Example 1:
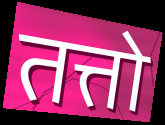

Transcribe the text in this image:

तत्तो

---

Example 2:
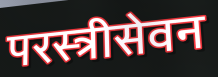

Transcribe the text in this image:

परस्त्रीसेवन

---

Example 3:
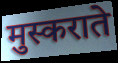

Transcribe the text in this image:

मुस्‍कराते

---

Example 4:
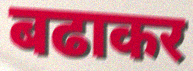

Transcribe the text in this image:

बढाकर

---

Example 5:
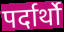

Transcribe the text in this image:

पर्दार्थो